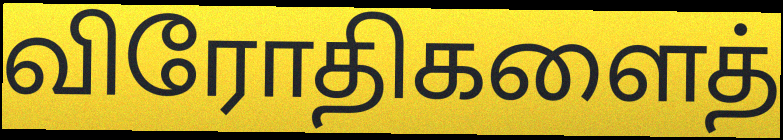
விரோதிகளைத்